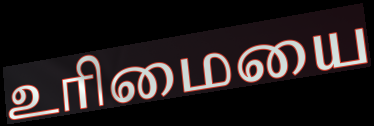
உரிமையை